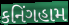
કનિંગહામ